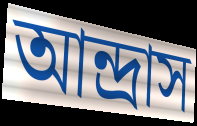
আন্দ্রাস